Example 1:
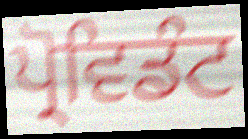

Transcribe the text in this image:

ਪ੍ਰੋਵਿਡੰਟ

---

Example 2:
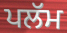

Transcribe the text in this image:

ਪਲੱਮ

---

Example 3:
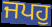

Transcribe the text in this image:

ਜਪਹੁ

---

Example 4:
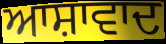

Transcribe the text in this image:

ਆਸ਼ਾਵਾਦ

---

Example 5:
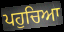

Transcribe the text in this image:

ਪਹੁਚਿਆ